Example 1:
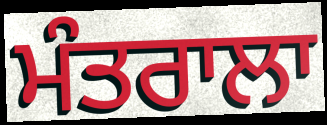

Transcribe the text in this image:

ਮੰਤਰਾਲਾ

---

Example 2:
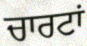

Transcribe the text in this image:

ਚਾਰਟਾਂ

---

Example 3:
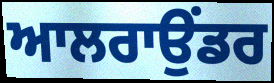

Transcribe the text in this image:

ਆਲਰਾਉਂਡਰ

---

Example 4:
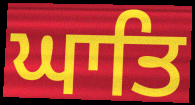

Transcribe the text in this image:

ਘਾਤਿ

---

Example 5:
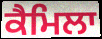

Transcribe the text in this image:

ਕੈਮਿਲਾ